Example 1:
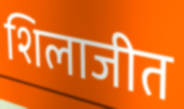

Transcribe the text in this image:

शिलाजीत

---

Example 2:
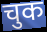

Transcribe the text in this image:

चुक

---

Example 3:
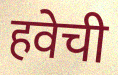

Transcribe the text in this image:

हवेची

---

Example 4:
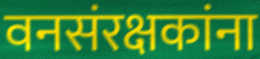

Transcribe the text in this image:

वनसंरक्षकांना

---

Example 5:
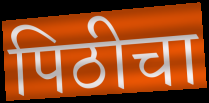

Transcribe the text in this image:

पिठीचा